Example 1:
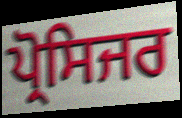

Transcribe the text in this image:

ਪ੍ਰੋਸਿਜਰ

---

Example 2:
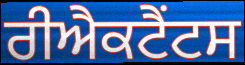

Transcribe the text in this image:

ਰੀਐਕਟੈਂਟਸ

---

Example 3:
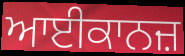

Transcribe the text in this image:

ਆਈਕਾਨਜ਼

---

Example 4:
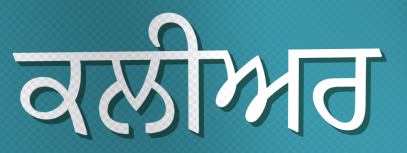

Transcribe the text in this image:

ਕਲੀਅਰ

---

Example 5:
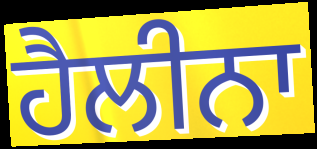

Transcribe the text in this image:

ਹੈਲੀਨਾ